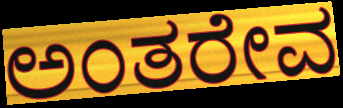
ಅಂತರೇವ